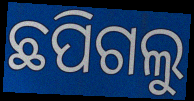
ଛପିଗଲୁ